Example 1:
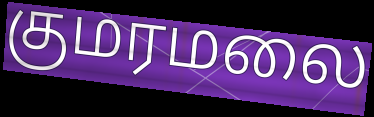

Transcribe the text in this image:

குமரமலை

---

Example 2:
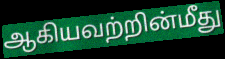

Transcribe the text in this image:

ஆகியவற்றின்மீது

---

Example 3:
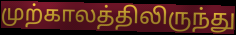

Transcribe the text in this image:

முற்காலத்திலிருந்து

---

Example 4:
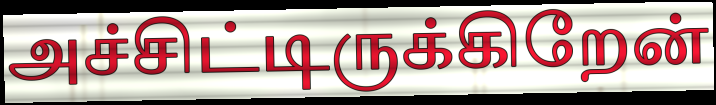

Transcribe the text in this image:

அச்சிட்டிருக்கிறேன்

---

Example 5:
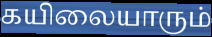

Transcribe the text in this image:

கயிலையாரும்